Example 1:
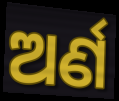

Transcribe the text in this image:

ଅର୍ଣ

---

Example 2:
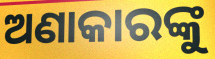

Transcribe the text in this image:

ଅଣାକାରଙ୍କୁ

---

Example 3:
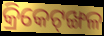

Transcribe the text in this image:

କ୍ରିକେଟ୍‌ଙ୍ଖଳ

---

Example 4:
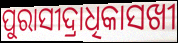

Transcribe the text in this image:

ପୁରାସୀଦ୍ରାଧିକାସଖୀ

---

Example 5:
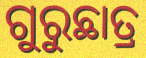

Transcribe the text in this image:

ଗୁରୁଛାତ୍ର